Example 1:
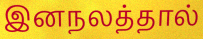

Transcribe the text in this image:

இனநலத்தால்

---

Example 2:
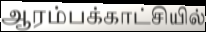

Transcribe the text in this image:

ஆரம்பக்காட்சியில்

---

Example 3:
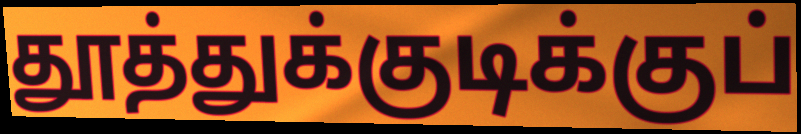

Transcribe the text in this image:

தூத்துக்குடிக்குப்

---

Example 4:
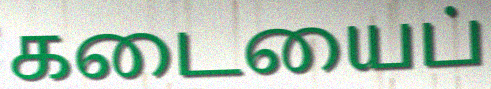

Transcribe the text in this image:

கடையைப்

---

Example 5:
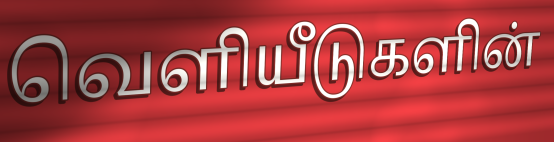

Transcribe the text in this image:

வெளியீடுகளின்